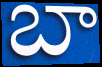
బా